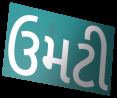
ઉમટી